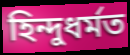
হিন্দুধৰ্মত